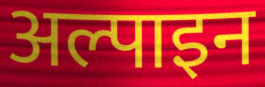
अल्पाइन